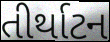
તીર્થાટન